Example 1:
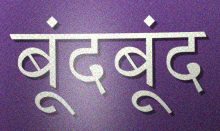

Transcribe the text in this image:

बूंदबूंद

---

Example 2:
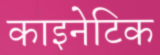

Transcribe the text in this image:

काइनेटिक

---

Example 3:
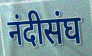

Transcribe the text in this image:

नंदीसंघ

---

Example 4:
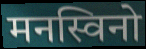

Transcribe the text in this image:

मनस्विनो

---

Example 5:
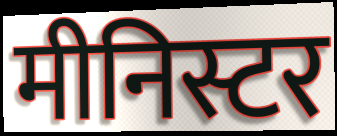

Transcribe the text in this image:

मीनिस्टर